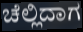
ಚೆಲ್ಲಿದಾಗ